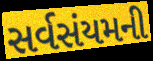
સર્વસંયમની